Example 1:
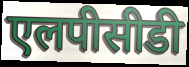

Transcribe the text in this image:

एलपीसीडी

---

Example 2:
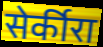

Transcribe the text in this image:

सेर्कीरा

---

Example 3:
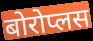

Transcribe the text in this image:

बोरोप्लस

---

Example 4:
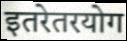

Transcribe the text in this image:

इतरेतरयोग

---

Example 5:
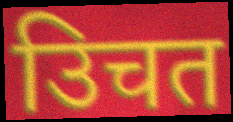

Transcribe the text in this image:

उिचत